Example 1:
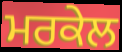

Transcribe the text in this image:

ਮਰਕੇਲ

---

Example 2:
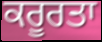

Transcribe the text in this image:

ਕਰੂਰਤਾ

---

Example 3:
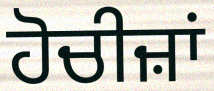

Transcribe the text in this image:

ਹੋਚੀਜ਼ਾਂ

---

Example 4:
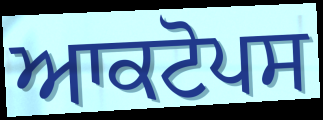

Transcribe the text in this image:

ਆਕਟੋਪਸ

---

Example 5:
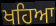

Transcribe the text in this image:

ਖਹਿਆ